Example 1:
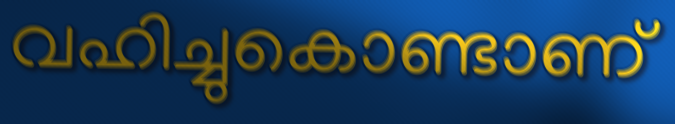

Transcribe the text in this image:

വഹിച്ചുകൊണ്ടാണ്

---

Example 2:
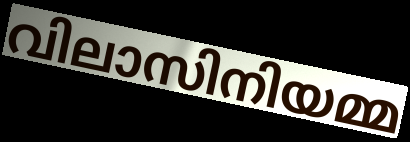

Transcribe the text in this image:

വിലാസിനിയമ്മ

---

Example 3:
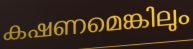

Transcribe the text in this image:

കഷണമെങ്കിലും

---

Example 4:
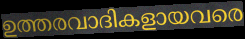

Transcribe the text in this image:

ഉത്തരവാദികളായവരെ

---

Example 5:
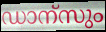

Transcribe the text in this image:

ഡാന്സും